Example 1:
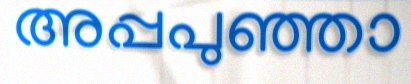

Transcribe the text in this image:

അപ്പപുഞ്ഞാ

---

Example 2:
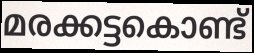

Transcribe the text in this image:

മരക്കട്ടകൊണ്ട്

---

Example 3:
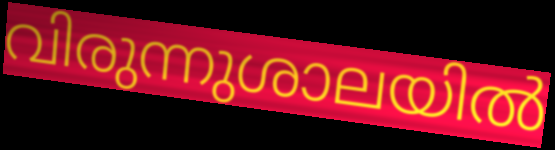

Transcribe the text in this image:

വിരുന്നുശാലയിൽ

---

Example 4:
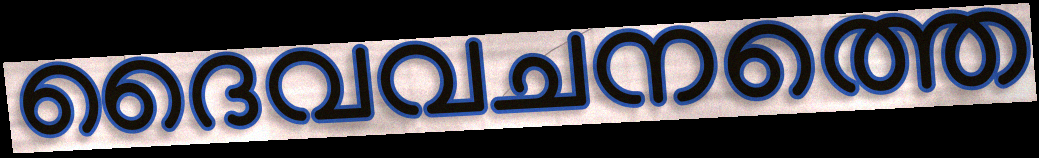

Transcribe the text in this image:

ദൈവവചനത്തെ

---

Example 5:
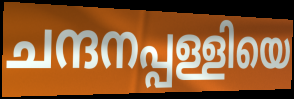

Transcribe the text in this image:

ചന്ദനപ്പള്ളിയെ